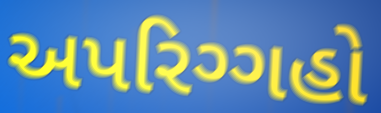
અપરિગ્ગહો